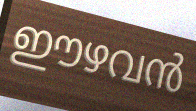
ഈഴവൻ